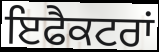
ਇਫੈਕਟਰਾਂ